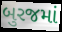
બુરજમાં